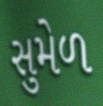
સુમેળ